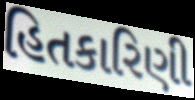
હિતકારિણી